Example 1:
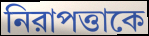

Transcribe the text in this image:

নিরাপত্তাকে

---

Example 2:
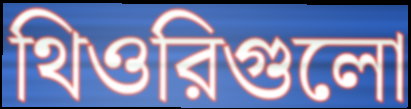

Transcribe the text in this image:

থিওরিগুলো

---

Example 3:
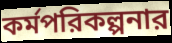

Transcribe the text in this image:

কর্মপরিকল্পনার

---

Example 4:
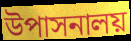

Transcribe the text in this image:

উপাসনালয়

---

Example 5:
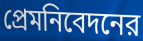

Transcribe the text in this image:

প্রেমনিবেদনের